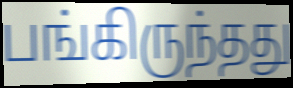
பங்கிருந்தது